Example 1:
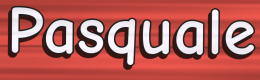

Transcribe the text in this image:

Pasquale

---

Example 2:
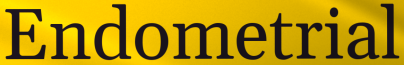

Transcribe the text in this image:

Endometrial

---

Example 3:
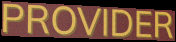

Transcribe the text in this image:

PROVIDER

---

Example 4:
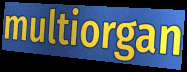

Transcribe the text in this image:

multiorgan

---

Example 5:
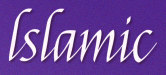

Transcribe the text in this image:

lslamic